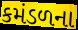
કમંડળના